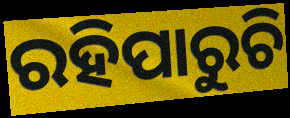
ରହିପାରୁଚି